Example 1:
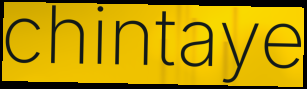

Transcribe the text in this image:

chintaye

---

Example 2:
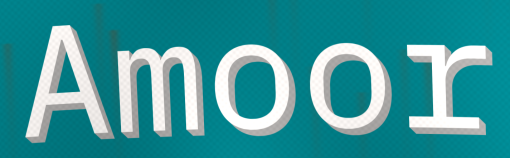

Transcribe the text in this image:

Amoor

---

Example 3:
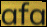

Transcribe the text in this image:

afa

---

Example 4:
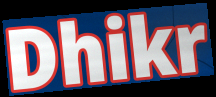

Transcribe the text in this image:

Dhikr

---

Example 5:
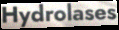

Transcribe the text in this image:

Hydrolases